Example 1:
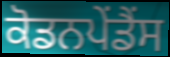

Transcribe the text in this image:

ਕੋਡਨਪੇਂਡੈਂਸ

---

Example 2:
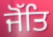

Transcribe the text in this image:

ਜੋੱਤਿ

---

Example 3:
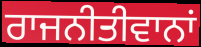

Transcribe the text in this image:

ਰਾਜਨੀਤੀਵਾਨਾਂ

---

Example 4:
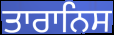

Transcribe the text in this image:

ਤਾਰਾਨਿਸ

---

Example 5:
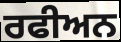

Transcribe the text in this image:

ਰਫੀਅਨ